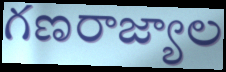
గణరాజ్యాల